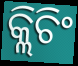
କ୍ଲିଚିଂ